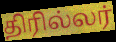
திரில்லர்